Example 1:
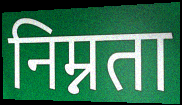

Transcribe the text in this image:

निम्नता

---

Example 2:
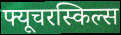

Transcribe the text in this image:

फ्यूचरस्किल्स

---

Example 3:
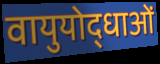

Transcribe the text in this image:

वायुयोद्धाओं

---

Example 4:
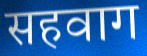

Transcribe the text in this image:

सहवाग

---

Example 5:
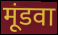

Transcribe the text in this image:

मूंडवा